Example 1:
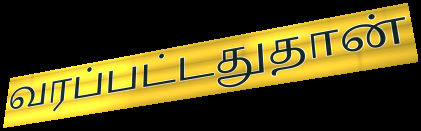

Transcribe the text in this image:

வரப்பட்டதுதான்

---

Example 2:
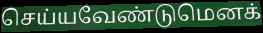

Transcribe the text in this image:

செய்யவேண்டுமெனக்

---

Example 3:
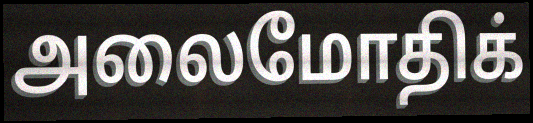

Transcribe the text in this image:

அலைமோதிக்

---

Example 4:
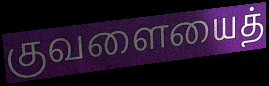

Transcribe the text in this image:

குவளையைத்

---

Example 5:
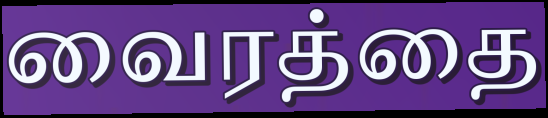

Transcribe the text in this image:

வைரத்தை